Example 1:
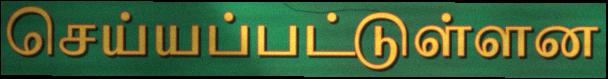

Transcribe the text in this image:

செய்யப்பட்டுள்ளன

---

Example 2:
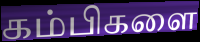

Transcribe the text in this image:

கம்பிகளை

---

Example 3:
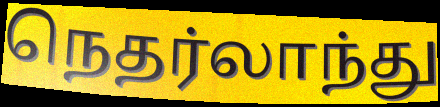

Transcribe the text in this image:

நெதர்லாந்து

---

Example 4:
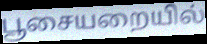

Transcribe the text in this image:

பூசையறையில்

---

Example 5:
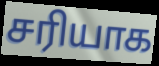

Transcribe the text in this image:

சரியாக